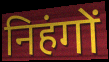
निहंगों